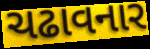
ચઢાવનાર